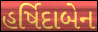
હર્ષિદાબેન